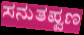
ಸನುತಪ್ವಣ